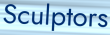
Sculptors